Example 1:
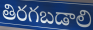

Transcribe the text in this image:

తిరగబడాలి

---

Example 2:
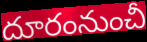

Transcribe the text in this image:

దూరంనుంచీ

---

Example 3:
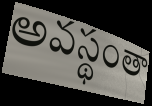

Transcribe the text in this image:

అవస్థంతా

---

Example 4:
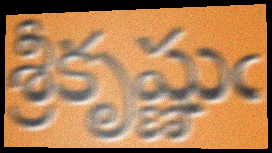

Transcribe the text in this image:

శ్రీకృష్ణుఁ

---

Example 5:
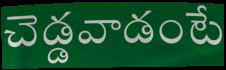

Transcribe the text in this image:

చెడ్డవాడంటే